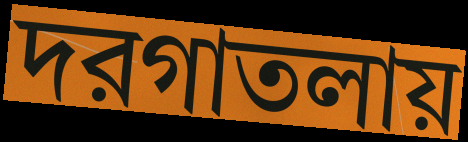
দরগাতলায়